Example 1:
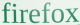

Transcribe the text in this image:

firefox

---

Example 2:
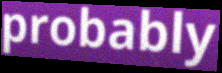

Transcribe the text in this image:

probably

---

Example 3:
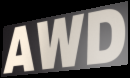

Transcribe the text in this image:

AWD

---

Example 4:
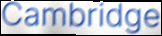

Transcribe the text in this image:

Cambridge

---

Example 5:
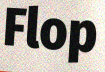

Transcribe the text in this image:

Flop